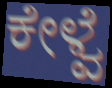
ಕೇಳ್ವೆ